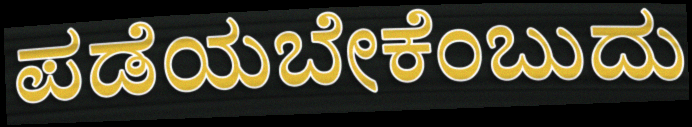
ಪಡೆಯಬೇಕೆಂಬುದು